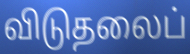
விடுதலைப்